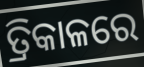
ତ୍ରିକାଳରେ